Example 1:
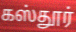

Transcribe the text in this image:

கஸ்தூர்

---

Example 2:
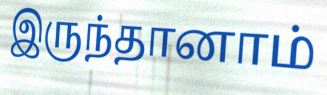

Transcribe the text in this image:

இருந்தானாம்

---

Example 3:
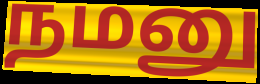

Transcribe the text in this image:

நமனு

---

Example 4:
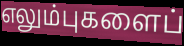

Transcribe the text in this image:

எலும்புகளைப்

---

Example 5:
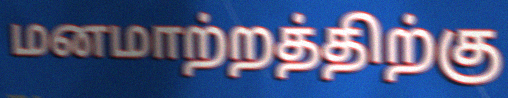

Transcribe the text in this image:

மனமாற்றத்திற்கு